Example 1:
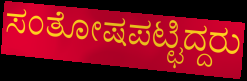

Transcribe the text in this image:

ಸಂತೋಷಪಟ್ಟಿದ್ದರು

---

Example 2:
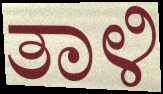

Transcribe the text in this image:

ತಾಳಿ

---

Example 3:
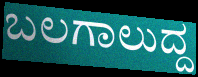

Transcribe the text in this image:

ಬಲಗಾಲುದ್ದ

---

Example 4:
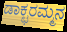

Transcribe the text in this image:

ಡಾಕ್ಟರಮ್ಮನ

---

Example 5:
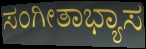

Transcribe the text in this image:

ಸಂಗೀತಾಭ್ಯಾಸ